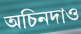
অচিনদাও